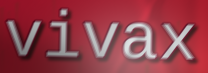
vivax